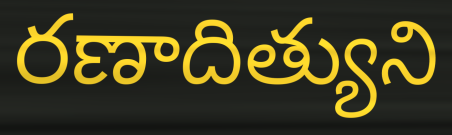
రణాదిత్యుని